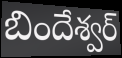
బిందేశ్వర్